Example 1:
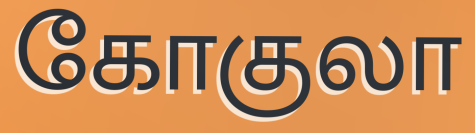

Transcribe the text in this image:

கோகுலா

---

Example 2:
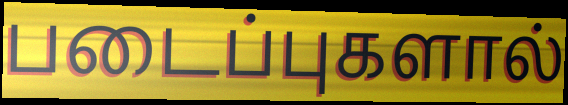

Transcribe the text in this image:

படைப்புகளால்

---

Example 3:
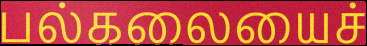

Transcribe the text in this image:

பல்கலையைச்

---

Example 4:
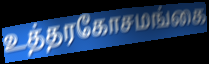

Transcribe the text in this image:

உத்தரகோசமங்கை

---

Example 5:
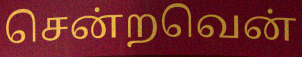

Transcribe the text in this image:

சென்றவென்